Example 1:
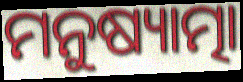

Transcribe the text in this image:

ମନୁଷ୍ୟାତ୍ମା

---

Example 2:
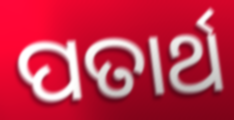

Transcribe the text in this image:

ପତାର୍ଥ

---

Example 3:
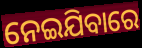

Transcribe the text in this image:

ନେଇଯିବାରେ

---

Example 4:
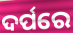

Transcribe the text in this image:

ଦର୍ପରେ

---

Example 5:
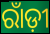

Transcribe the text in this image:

ରାଁଡ଼ୀ